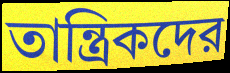
তান্ত্রিকদের